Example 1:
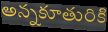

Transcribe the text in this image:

అన్నకూతురికి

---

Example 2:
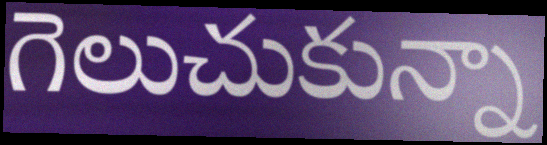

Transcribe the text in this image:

గెలుచుకున్నా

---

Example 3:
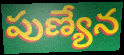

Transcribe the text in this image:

పుణ్యేన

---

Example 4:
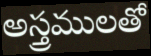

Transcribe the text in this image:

అస్త్రములతో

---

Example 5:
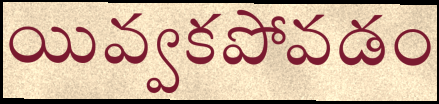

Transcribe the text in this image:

యివ్వకపోవడం